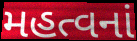
મહત્વનાં